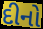
દીનો